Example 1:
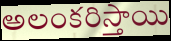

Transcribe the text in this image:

అలంకరిస్తాయి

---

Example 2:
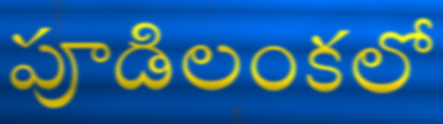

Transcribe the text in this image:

పూడిలంకలో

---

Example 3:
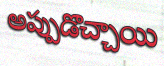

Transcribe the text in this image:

అప్పుడొచ్చాయి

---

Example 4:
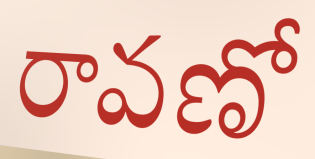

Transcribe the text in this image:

రావణో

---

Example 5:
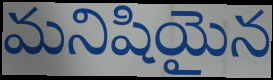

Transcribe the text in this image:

మనిషియైన